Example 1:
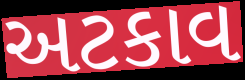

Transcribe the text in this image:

અટકાવ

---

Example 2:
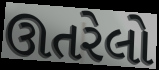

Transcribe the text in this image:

ઊતરેલો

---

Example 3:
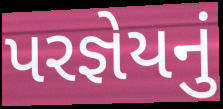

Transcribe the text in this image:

પરજ્ઞેયનું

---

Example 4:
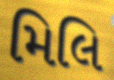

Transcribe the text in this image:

મિલિ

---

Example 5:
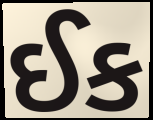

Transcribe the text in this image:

ઈક